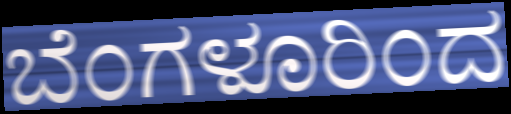
ಬೆಂಗಳೂರಿಂದ